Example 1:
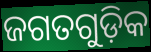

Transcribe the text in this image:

ଜଗତଗୁଡ଼ିକ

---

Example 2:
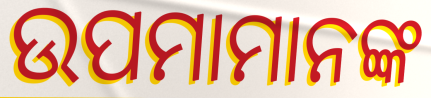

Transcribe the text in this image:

ଉପମାମାନଙ୍କ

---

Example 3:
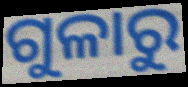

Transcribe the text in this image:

ଗୁଳାରୁ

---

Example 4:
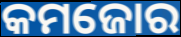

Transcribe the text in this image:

କମଜୋର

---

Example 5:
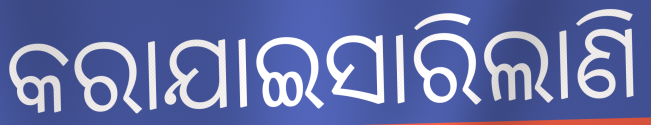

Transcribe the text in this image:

କରାଯାଇସାରିଲାଣି